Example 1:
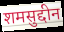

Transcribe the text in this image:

शमसुद्दीन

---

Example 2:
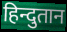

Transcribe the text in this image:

हिन्दुतान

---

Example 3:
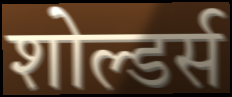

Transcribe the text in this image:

शोल्डर्स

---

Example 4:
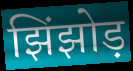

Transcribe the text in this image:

झिंझोड़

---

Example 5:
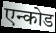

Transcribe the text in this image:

एन्कोड